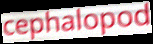
cephalopod